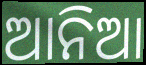
ଆନିଆ